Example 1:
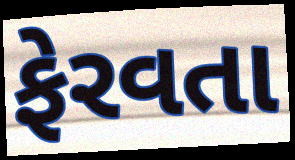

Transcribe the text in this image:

ફેરવતા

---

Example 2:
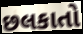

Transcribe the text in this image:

છલકાતો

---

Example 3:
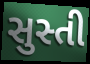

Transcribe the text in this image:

સુસ્તી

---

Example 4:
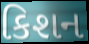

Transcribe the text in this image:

કિશન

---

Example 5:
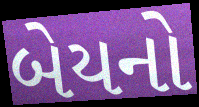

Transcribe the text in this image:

બેયનો